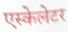
एस्केलेटर